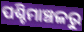
ପଶ୍ଚିମାଞ୍ଚଳରୁ